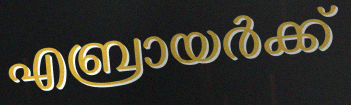
എബ്രായർക്ക്